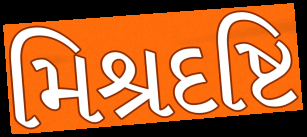
મિશ્રદષ્ટિ